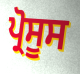
ਪ੍ਰੋਸੂਸ